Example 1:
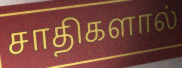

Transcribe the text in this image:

சாதிகளால்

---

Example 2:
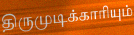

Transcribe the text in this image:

திருமுடிக்காரியும்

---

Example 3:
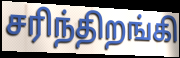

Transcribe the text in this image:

சரிந்திறங்கி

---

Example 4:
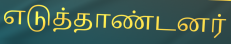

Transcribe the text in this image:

எடுத்தாண்டனர்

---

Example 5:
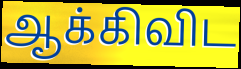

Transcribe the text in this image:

ஆக்கிவிட